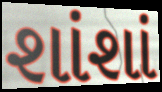
શાંશાં